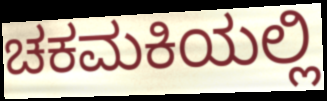
ಚಕಮಕಿಯಲ್ಲಿ